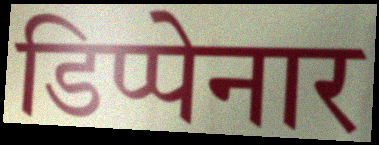
डिप्पेनार